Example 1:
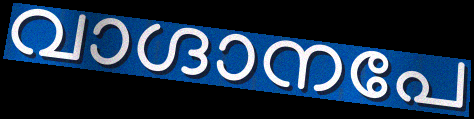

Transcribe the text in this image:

വാഗ്ദാനപേ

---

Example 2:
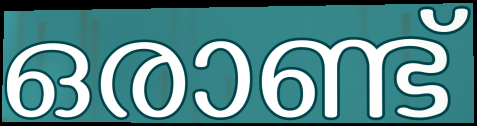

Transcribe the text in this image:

ഒരാണ്ട്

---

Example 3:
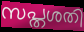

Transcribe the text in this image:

സപ്തശതി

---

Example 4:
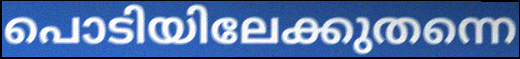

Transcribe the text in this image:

പൊടിയിലേക്കുതന്നെ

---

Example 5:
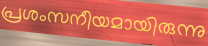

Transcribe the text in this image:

പ്രശംസനീയമായിരുന്നു